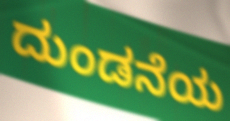
ದುಂಡನೆಯ